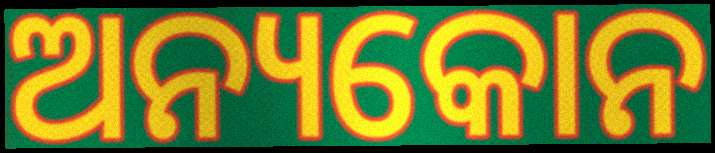
ଅନ୍ୟକୋନ